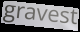
gravest